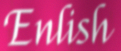
Enlish